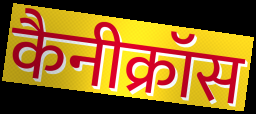
कैनीक्रॉस